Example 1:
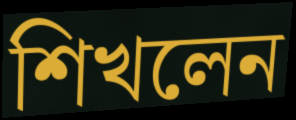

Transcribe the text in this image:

শিখলেন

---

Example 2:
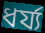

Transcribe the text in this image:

ধর্য্য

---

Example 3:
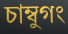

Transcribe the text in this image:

চাম্বুগং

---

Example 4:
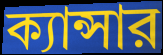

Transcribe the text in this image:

ক্যান্সার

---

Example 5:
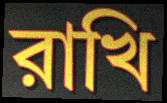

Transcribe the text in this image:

রাখি